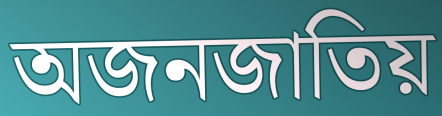
অজনজাতিয়